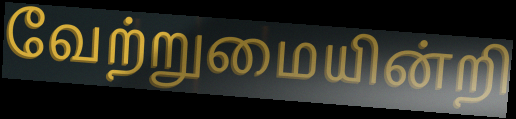
வேற்றுமையின்றி